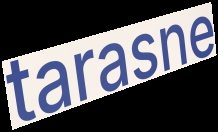
tarasne